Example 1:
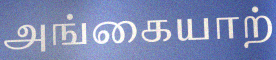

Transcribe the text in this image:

அங்கையாற்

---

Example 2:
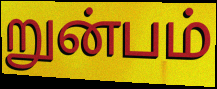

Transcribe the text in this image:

றுன்பம்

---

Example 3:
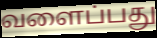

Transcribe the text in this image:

வளைப்பது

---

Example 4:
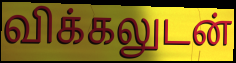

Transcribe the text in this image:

விக்கலுடன்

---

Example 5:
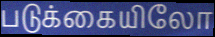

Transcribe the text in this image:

படுக்கையிலோ